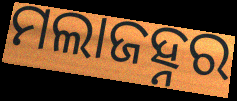
ମଲାଜହ୍ନର